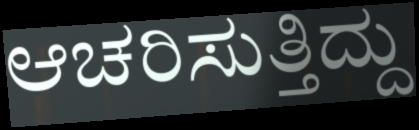
ಆಚರಿಸುತ್ತಿದ್ದು